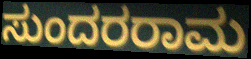
ಸುಂದರರಾಮ